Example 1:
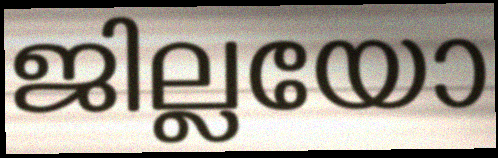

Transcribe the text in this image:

ജില്ലയോ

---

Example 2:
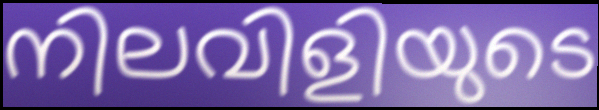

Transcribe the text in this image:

നിലവിളിയുടെ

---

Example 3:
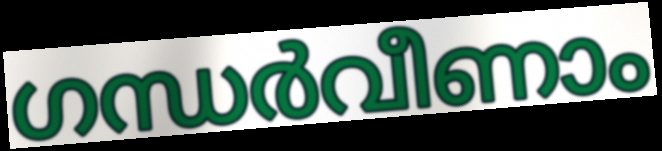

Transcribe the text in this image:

ഗന്ധർവീണാം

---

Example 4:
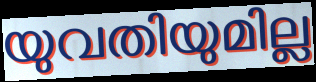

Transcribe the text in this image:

യുവതിയുമില്ല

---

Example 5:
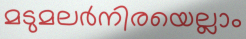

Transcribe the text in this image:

മടുമലർനിരയെല്ലാം